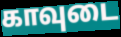
காவுடை